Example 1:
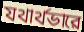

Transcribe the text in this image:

যথাৰ্থভাৱে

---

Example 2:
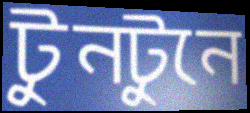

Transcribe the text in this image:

টুনটুনে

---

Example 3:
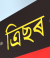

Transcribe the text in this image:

ত্ৰিছৰ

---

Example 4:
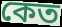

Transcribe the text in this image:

কেত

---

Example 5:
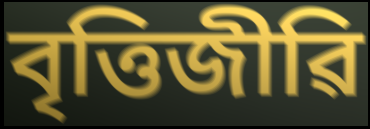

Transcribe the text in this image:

বৃত্তিজীৱি